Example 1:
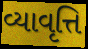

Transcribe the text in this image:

વ્યાવૃત્તિ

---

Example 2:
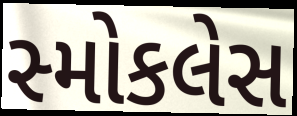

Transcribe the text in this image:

સ્મોકલેસ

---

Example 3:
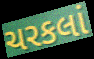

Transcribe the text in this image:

ચરકલાં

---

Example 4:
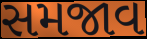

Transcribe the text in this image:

સમજાવ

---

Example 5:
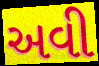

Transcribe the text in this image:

અવી